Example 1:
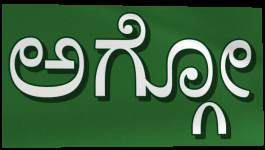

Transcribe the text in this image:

ಅಗ್ಗೋ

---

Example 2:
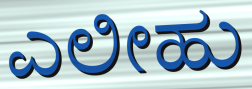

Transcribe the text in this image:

ಎಲೀಹು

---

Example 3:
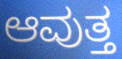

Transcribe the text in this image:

ಆವುತ್ತ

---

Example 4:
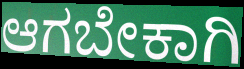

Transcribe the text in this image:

ಆಗಬೇಕಾಗಿ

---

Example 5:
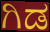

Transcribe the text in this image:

ಗಿಡ